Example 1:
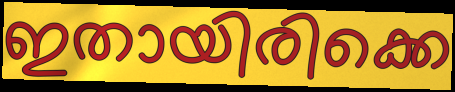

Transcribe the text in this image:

ഇതായിരിക്കെ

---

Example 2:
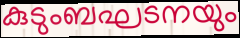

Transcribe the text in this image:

കുടുംബഘടനയും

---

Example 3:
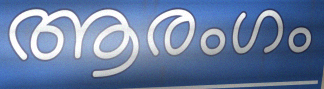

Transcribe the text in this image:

ആരംഗം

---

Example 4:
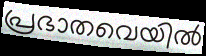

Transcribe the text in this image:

പ്രഭാതവെയിൽ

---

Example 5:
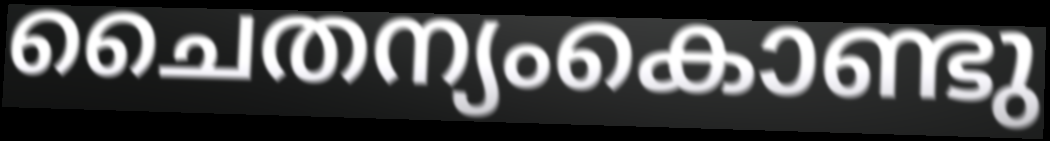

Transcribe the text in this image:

ചൈതന്യംകൊണ്ടു